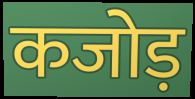
कजोड़